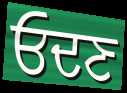
ਓਦਣ